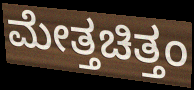
ಮೇತ್ತಚಿತ್ತಂ